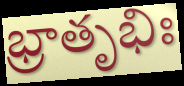
భ్రాతృభిః